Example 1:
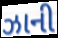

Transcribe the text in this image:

ઝાની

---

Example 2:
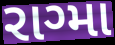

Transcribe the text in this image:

રાગ્મા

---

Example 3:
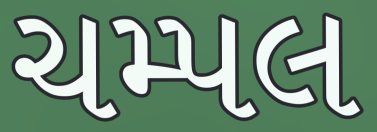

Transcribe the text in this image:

ચમ્પલ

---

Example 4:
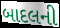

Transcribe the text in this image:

બાદલની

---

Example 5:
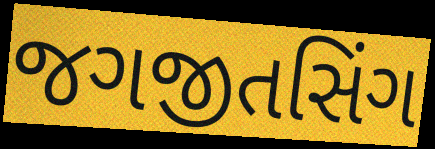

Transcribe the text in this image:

જગજીતસિંગ